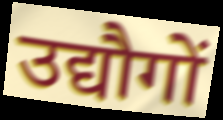
उद्यौगों